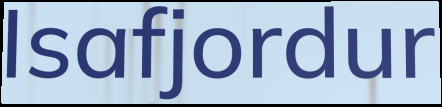
Isafjordur